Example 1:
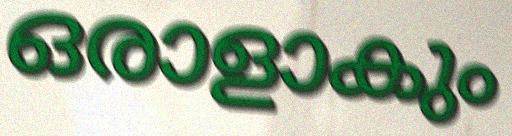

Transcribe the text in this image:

ഒരാളാകും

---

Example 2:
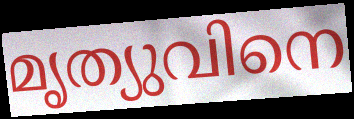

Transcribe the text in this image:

മൃത്യുവിനെ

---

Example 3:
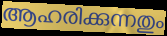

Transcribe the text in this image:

ആഹരിക്കുന്നതും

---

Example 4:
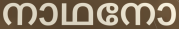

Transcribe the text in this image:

നാഥനോ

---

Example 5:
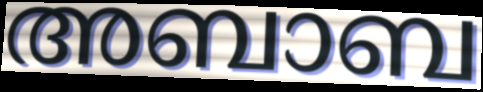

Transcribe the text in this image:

അബാബ